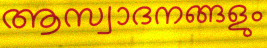
ആസ്വാദനങ്ങളും